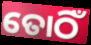
ତୋଠିଁ